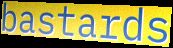
bastards